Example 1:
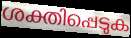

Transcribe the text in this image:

ശക്തിപ്പെടുക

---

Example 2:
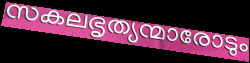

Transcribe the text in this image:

സകലഭൃത്യന്മാരോടും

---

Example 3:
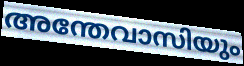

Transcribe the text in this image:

അന്തേവാസിയും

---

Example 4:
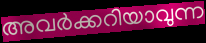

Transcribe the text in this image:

അവർക്കറിയാവുന്ന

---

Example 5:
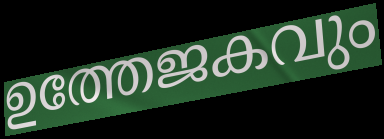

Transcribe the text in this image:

ഉത്തേജകവും